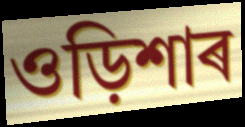
ওড়িশাৰ